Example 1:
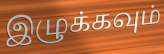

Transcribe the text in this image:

இழுக்கவும்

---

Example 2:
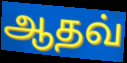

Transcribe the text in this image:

ஆதவ்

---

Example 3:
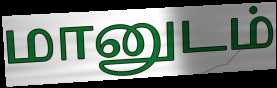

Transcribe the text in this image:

மானுடம்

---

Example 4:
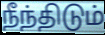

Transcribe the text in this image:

நீந்திடும்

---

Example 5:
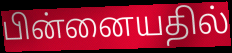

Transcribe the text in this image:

பின்னையதில்